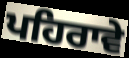
ਪਹਿਰਾਵੇ